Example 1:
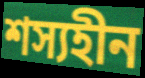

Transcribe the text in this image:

শস্যহীন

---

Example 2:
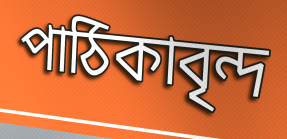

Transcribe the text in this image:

পাঠিকাবৃন্দ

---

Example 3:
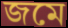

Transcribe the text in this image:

জমে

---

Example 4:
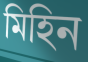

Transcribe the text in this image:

মিহিন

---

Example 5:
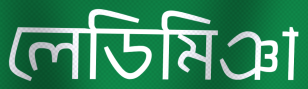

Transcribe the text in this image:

লেডিমিঞা